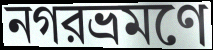
নগরভ্রমণে